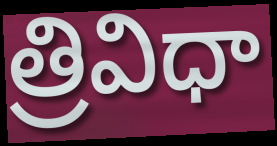
త్రివిధా